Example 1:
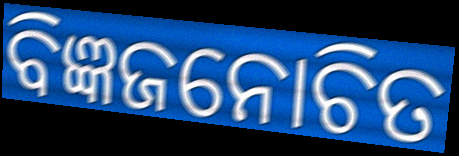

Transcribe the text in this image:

ବିଜ୍ଞଜନୋଚିତ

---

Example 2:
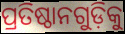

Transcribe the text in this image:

ପ୍ରତିଷ୍ଠାନଗୁଡ଼ିକୁ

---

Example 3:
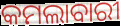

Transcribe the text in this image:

କମଲାବାରୀ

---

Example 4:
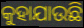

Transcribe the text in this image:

କୁହାଯାଉଛି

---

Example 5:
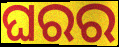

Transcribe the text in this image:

ଘରର